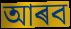
আৰব